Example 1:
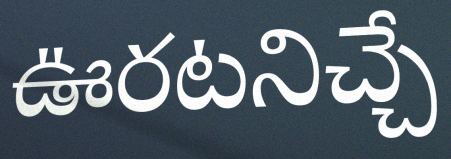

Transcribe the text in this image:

ఊరటనిచ్చే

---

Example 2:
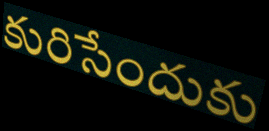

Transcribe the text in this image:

కురిసేందుకు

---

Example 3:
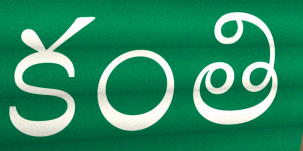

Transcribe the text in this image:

కంతి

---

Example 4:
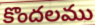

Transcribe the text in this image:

కొందలము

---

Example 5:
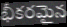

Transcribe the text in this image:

భీకరమైన